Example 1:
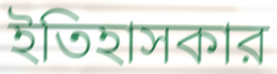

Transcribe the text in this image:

ইতিহাসকার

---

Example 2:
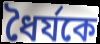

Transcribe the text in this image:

ধৈর্যকে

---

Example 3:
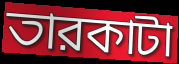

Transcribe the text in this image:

তারকাটা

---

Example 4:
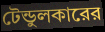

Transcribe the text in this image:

টেন্ডুলকারের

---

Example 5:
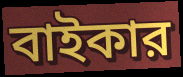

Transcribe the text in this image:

বাইকার